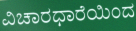
ವಿಚಾರಧಾರೆಯಿಂದ